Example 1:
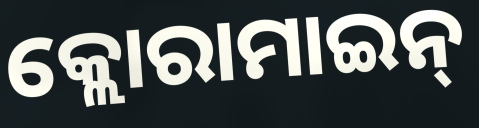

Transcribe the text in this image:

କ୍ଲୋରାମାଇନ୍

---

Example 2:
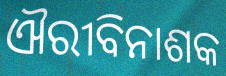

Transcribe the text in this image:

ଐରୀବିନାଶକ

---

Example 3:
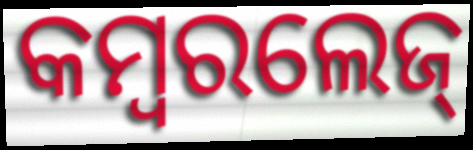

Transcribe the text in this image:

କମ୍ବରଲେଜ୍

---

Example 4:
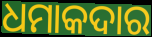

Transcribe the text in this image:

ଧମାକଦାର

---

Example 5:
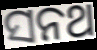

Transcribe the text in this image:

ସନଥ